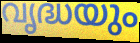
വൃദ്ധയും